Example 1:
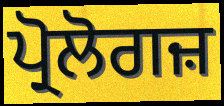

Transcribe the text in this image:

ਪ੍ਰੋਲੋਗਜ਼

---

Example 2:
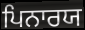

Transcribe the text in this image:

ਪਿਨਾਰਯ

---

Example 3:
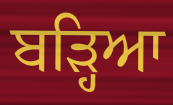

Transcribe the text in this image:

ਬੜ੍ਹਿਆ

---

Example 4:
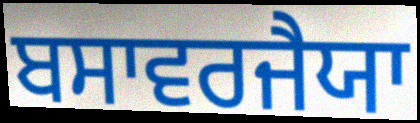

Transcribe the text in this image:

ਬਸਾਵਰਜੈਯਾ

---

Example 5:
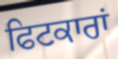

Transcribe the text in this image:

ਫਿਟਕਾਰਾਂ